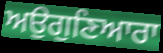
ਅਉਗੁਣਿਆਰਾ